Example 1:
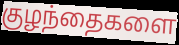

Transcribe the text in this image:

குழந்தைகளை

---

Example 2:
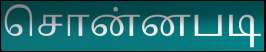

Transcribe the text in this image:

சொன்னபடி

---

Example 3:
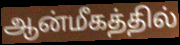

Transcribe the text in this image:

ஆன்மீகத்தில்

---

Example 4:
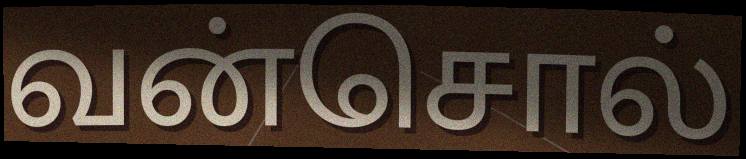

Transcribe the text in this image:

வன்சொல்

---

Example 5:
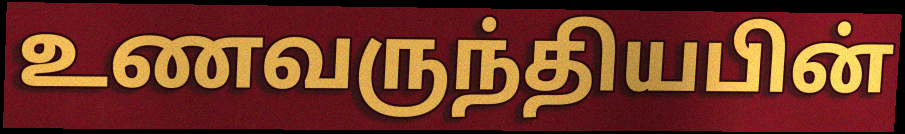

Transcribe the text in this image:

உணவருந்தியபின்